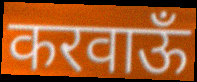
करवाऊँ